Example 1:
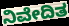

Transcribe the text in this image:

ನಿವೇದಿತ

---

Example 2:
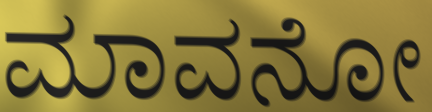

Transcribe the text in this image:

ಮಾವನೋ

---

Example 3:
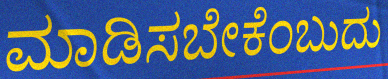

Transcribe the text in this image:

ಮಾಡಿಸಬೇಕೆಂಬುದು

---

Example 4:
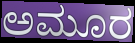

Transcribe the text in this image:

ಅಮೂರ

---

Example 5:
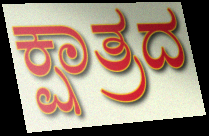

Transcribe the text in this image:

ಕ್ಷಾತ್ರದ